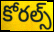
కోరల్స్